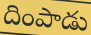
దింపాడు